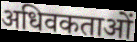
अधिवकताओं